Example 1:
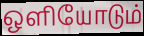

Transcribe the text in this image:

ஒளியோடும்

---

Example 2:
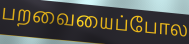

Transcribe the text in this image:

பறவையைப்போல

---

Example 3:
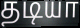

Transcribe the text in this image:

தடியா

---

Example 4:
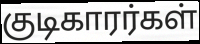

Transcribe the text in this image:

குடிகாரர்கள்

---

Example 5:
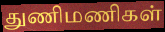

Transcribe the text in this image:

துணிமணிகள்